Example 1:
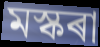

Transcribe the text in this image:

মস্কৰা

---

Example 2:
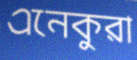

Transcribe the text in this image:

এনেকুৱা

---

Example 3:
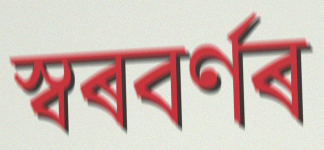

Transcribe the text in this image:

স্বৰবৰ্ণৰ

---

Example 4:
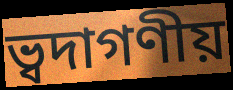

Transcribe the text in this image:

ভ্বদাগণীয়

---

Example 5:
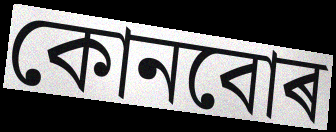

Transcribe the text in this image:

কোনবোৰ